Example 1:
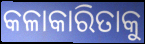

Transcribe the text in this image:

କଳାକାରିତାକୁ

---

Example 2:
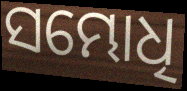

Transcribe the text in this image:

ସମ୍ଭୋଧି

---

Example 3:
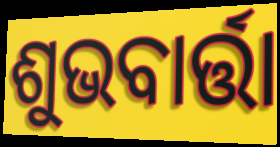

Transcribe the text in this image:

ଶୁଭବାର୍ତ୍ତା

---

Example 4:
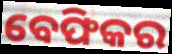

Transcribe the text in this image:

ବେଫିକର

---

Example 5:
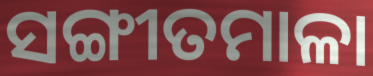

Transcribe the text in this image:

ସଙ୍ଗୀତମାଳା